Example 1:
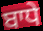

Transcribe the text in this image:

ਬਾਧੇ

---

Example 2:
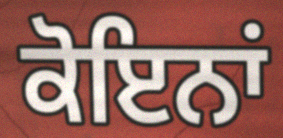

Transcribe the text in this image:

ਕੋਇਨਾਂ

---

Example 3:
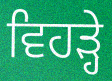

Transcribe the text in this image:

ਵਿਹੜ੍ਹੇ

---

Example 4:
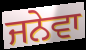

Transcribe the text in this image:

ਜਨੇਵਾ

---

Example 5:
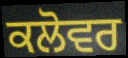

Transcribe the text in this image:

ਕਲੋਵਰ